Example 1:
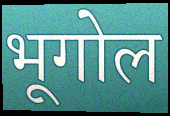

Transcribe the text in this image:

भूगोल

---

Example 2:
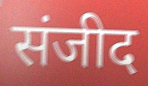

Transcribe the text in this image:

संजीद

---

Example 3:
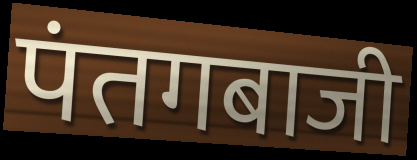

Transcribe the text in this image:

पंतगबाजी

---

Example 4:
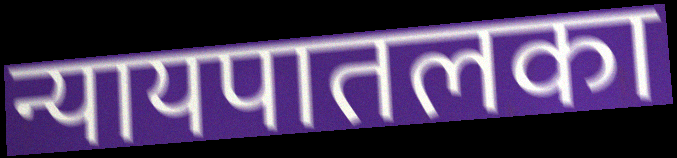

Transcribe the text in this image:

न्यायपातलका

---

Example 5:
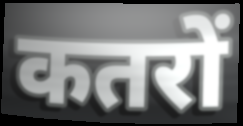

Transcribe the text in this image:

कतरों